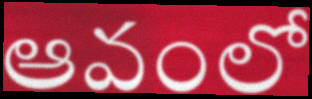
ఆవంలో